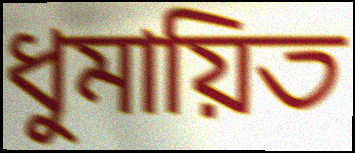
ধুমায়িত